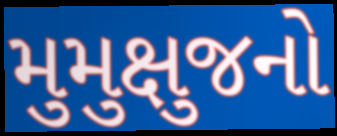
મુમુક્ષુજનો